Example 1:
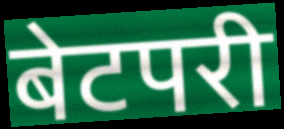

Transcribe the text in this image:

बेटपरी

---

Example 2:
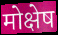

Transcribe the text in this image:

मोक्षेष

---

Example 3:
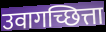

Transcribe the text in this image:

उवागच्छित्ता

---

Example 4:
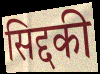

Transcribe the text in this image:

सिद्दकी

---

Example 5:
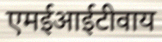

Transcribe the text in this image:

एमईआईटीवाय